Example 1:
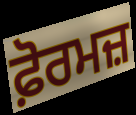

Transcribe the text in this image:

ਫ਼ੋਰਮਜ਼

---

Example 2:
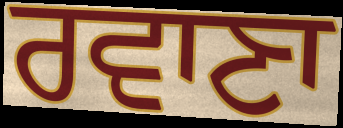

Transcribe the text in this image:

ਰਵਾਣਾ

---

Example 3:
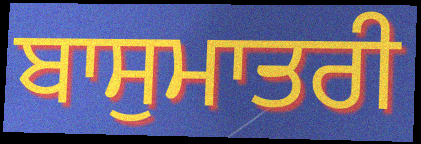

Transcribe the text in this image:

ਬਾਸੁਮਾਤਰੀ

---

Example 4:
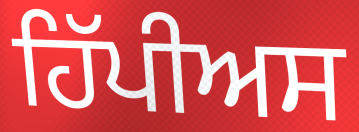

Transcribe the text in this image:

ਹਿੱਪੀਅਸ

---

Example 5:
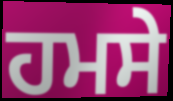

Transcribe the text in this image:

ਹਮਸੇ